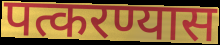
पत्करण्यास